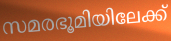
സമരഭൂമിയിലേക്ക്